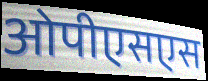
ओपीएसएस